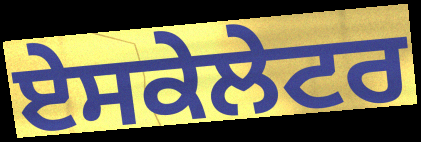
ਏਸਕੇਲੇਟਰ